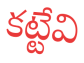
కట్టేవి